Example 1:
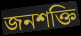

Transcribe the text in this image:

জনশক্তি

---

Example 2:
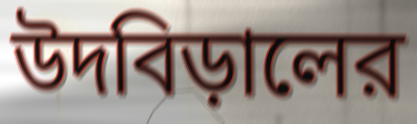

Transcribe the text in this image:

উদবিড়ালের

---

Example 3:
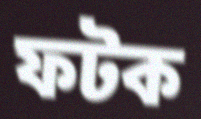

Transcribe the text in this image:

ফটক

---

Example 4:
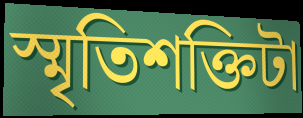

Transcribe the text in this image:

স্মৃতিশক্তিটা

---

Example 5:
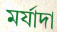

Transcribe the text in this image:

মর্যাদা